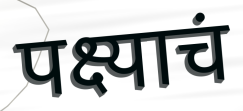
पक्ष्याचं